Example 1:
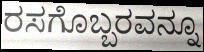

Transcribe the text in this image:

ರಸಗೊಬ್ಬರವನ್ನೂ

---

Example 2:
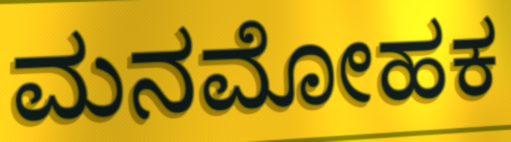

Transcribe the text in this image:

ಮನಮೋಹಕ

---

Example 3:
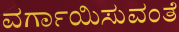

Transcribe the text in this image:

ವರ್ಗಾಯಿಸುವಂತೆ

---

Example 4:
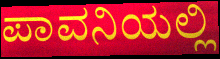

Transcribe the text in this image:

ಪಾವನಿಯಲ್ಲಿ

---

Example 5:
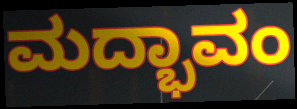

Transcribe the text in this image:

ಮದ್ಭಾವಂ